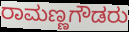
ರಾಮಣ್ಣಗೌಡರು